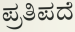
ಪ್ರತಿಪದೆ